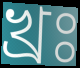
খ্রঃ